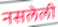
नसलेली